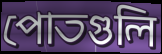
পোতগুলি